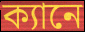
ক্যানে